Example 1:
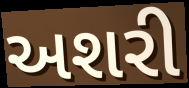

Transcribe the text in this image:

અશરી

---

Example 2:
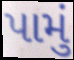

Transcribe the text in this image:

પામું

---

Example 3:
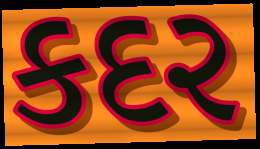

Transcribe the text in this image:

કદર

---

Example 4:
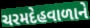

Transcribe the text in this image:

ચરમદેહવાળાને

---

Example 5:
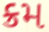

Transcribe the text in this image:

ક્રમ